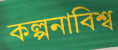
কল্পনাবিশ্ব